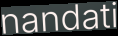
nandati